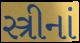
સ્ત્રીનાં